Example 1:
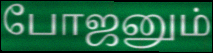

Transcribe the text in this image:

போஜனும்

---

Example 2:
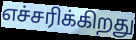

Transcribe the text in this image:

எச்சரிக்கிறது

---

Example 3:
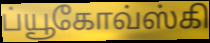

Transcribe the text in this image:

ப்யூகோவ்ஸ்கி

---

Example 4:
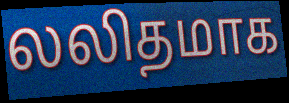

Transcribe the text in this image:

லலிதமாக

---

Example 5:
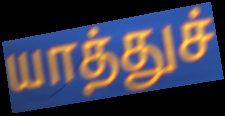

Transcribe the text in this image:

யாத்துச்